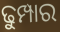
ଢୁମ୍ପାର